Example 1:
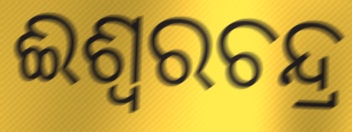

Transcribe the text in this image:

ଈଶ୍ୱରଚନ୍ଦ୍ର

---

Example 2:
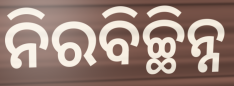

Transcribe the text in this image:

ନିରବିଚ୍ଛିନ୍ନ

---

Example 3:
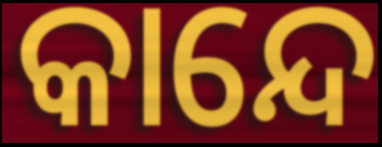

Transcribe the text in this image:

କାନ୍ଦେ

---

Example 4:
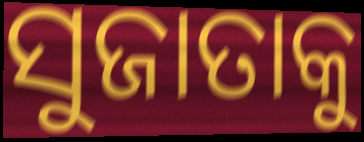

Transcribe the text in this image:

ସୁଜାତାକୁ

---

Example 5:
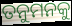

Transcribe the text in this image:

ତନୁମନକୁ